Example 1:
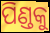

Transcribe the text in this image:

ପିଣ୍ଡକୁ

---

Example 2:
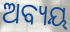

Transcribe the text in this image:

ଅବ୍ୟୟ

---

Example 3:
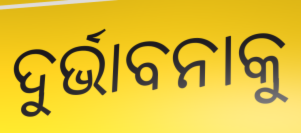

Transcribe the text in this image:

ଦୁର୍ଭାବନାକୁ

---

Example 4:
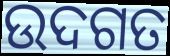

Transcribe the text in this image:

ଉଦଗତ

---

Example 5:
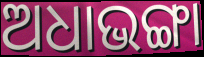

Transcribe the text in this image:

ଅଧାଭଙ୍ଗା